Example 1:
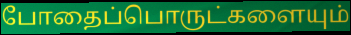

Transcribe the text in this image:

போதைப்பொருட்களையும்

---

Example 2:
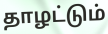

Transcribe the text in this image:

தாழட்டும்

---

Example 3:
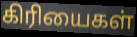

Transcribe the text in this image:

கிரியைகள்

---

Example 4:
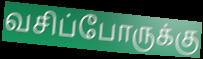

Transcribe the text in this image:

வசிப்போருக்கு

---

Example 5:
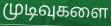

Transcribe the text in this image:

முடிவுகளை